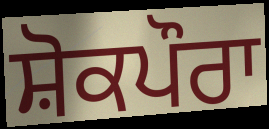
ਸ਼ੋਕਪੌਰਾ